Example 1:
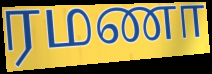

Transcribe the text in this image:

ரமணா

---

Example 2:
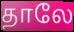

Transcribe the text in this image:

தாலே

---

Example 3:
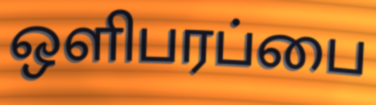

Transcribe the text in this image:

ஒளிபரப்பை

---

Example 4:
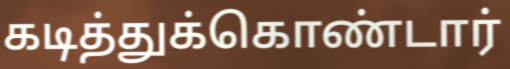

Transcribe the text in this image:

கடித்துக்கொண்டார்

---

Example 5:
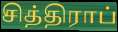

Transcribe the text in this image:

சித்திராப்